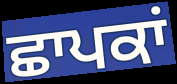
ਛਾਪਕਾਂ